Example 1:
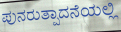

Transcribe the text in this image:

ಪುನರುತ್ಪಾದನೆಯಲ್ಲಿ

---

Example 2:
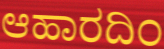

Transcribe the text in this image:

ಆಹಾರದಿಂ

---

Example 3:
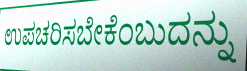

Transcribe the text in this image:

ಉಪಚರಿಸಬೇಕೆಂಬುದನ್ನು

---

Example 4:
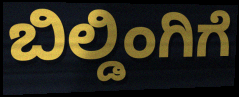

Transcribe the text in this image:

ಬಿಲ್ಡಿಂಗಿಗೆ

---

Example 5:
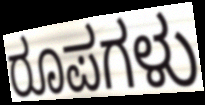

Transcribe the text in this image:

ರೂಪಗಳು